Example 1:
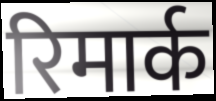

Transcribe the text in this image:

रिमार्क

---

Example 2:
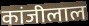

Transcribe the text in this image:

कांजीलाल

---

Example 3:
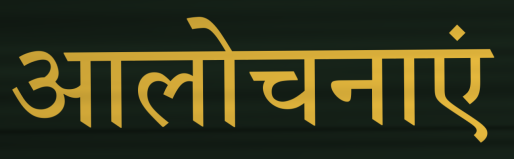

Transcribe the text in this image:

आलोचनाएं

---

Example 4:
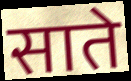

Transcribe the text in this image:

साते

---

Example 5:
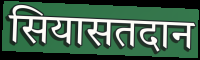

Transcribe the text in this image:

सियासतदान